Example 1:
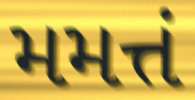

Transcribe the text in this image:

મમત્તં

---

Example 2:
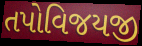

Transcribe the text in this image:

તપોવિજયજી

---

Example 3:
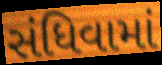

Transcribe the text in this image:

સંધિવામાં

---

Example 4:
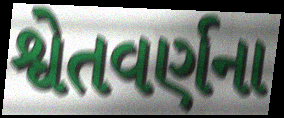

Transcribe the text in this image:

શ્વેતવર્ણના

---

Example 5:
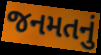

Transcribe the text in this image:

જનમતનું